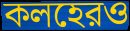
কলহেরও